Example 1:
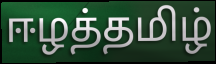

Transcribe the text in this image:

ஈழத்தமிழ்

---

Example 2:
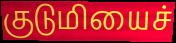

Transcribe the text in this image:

குடுமியைச்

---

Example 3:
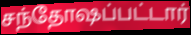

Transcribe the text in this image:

சந்தோஷப்பட்டார்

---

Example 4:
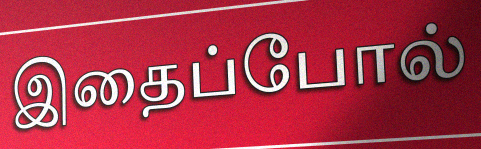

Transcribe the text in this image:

இதைப்போல்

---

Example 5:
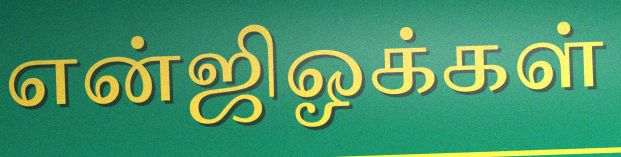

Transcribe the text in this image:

என்ஜிஓக்கள்